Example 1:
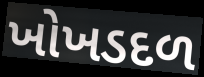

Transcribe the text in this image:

ખોખડદળ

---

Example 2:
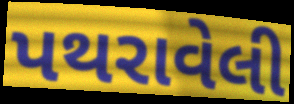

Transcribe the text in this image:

પથરાવેલી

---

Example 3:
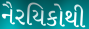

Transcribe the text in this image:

નૈરયિકોથી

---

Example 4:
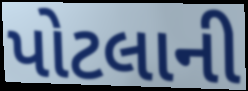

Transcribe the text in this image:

પોટલાની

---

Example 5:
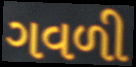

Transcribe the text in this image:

ગવળી